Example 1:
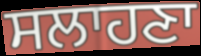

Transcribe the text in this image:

ਸਲਾਹਣਾ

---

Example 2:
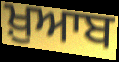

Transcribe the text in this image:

ਖ਼ੁਆਬ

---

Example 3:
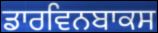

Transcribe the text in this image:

ਡਾਰਵਿਨਬਾਕਸ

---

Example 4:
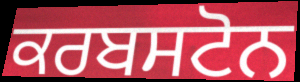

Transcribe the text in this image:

ਕਰਬਸਟੋਨ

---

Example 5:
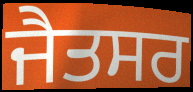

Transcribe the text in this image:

ਜੈਤਸਰ